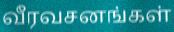
வீரவசனங்கள்